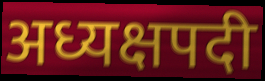
अध्यक्षपदी